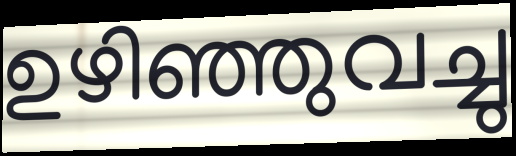
ഉഴിഞ്ഞുവച്ചു